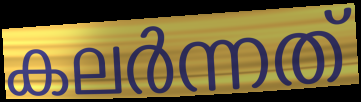
കലർന്നത്